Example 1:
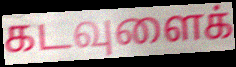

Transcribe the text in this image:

கடவுளைக்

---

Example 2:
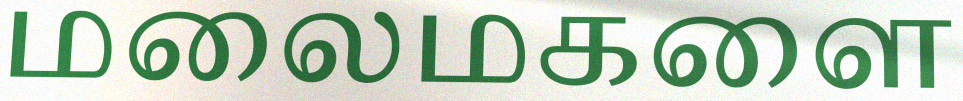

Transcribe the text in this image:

மலைமகளை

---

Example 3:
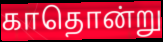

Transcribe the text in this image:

காதொன்று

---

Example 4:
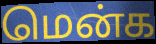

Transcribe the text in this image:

மென்க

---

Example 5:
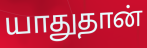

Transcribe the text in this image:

யாதுதான்